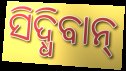
ସିଦ୍ଧିବାନ୍